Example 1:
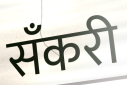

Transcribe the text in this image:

सँकरी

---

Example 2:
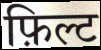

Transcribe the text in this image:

फ़िल्ट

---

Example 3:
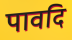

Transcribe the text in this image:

पावदि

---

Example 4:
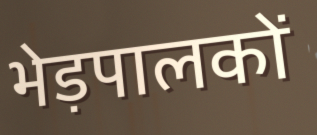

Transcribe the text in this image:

भेड़पालकों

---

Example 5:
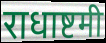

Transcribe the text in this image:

राधाष्टमी